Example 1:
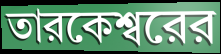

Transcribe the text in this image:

তারকেশ্বরের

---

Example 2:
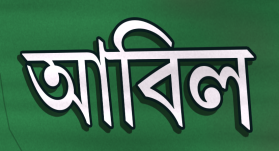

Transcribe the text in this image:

আবিল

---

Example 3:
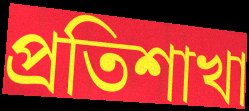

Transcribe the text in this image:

প্রতিশাখা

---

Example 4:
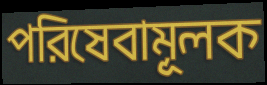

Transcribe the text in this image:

পরিষেবামূলক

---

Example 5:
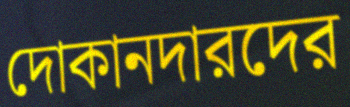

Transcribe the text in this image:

দোকানদারদের